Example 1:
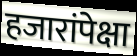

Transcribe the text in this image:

हजारांपेक्षा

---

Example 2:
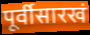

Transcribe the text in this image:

पूर्वीसारखं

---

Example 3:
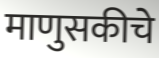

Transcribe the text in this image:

माणुसकीचे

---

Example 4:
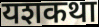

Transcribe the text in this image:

यशकथा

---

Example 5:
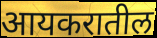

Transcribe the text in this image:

आयकरातील